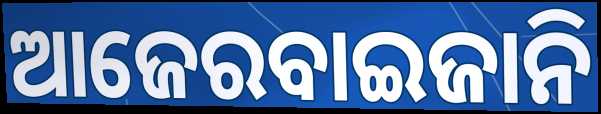
ଆଜେରବାଇଜାନି